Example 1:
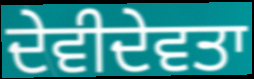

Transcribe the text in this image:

ਦੇਵੀਦੇਵਤਾ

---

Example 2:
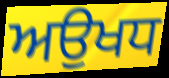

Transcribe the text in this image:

ਅਉਖਧ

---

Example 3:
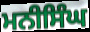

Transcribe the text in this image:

ਮਨੀਸਿੰਘ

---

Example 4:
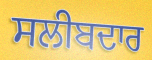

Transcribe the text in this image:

ਸਲੀਬਦਾਰ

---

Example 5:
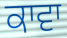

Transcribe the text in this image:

ਕਾਵਾ